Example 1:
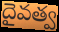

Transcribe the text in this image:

దైవత్వ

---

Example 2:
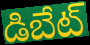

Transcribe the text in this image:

డిబేట్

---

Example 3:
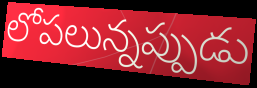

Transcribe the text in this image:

లోపలున్నప్పుడు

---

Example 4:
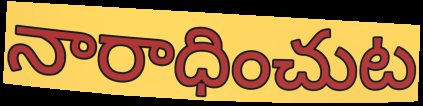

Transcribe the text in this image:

నారాధించుట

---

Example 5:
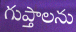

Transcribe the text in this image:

గుప్తాలను